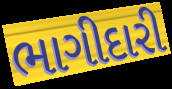
ભાગીદારી